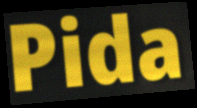
Pida